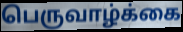
பெருவாழ்க்கை